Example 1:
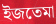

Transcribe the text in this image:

ইজতেমা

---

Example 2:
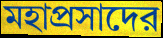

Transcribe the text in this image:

মহাপ্রসাদের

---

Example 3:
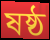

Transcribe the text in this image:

ষষ্ঠ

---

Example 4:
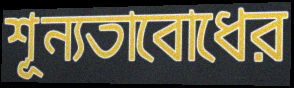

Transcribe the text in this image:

শূন্যতাবোধের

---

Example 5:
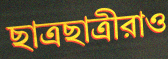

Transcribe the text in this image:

ছাত্রছাত্রীরাও